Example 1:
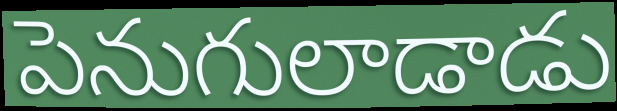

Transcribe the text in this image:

పెనుగులాడాడు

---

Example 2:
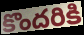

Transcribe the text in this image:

కొందరికి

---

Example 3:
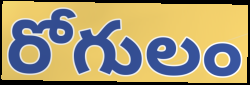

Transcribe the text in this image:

రోగులం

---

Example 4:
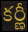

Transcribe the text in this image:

కర్ణీ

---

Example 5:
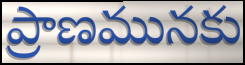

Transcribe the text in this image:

ప్రాణమునకు